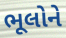
ભૂલોને